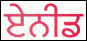
ਏਨੀਡ